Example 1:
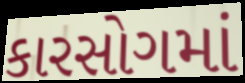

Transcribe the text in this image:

કારસોગમાં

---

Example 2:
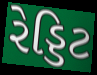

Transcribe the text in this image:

રેડ્ડિટ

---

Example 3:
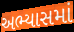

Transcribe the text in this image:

અભ્યાસમાં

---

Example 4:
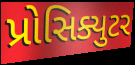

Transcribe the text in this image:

પ્રોસિક્યુટર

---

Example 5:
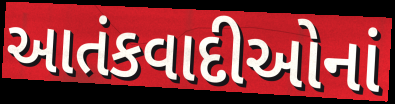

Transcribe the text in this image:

આતંકવાદીઓનાં